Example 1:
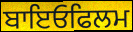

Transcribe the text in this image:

ਬਾਇਓਫਿਲਮ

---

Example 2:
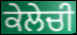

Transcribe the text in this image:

ਕੇਲੇਚੀ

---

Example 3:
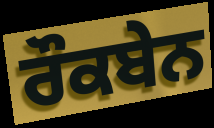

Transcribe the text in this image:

ਰੌਕਬੇਨ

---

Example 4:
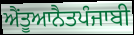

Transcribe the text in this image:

ਐਂਤੂਆਨੈਤਪੰਜਾਬੀ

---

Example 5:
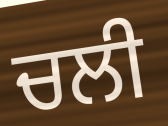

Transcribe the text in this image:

ਚਲੀ